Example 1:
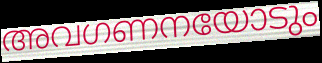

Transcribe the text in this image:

അവഗണനയോടും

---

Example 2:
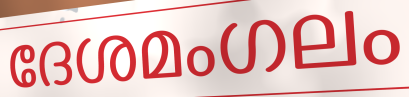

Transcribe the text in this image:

ദേശമംഗലം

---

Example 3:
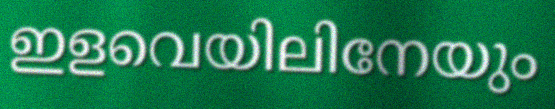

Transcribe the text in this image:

ഇളവെയിലിനേയും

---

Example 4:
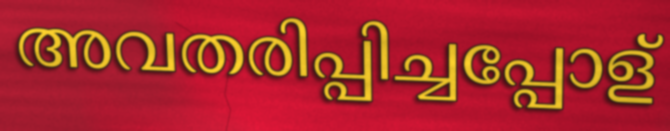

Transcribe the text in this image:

അവതരിപ്പിച്ചപ്പോള്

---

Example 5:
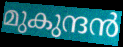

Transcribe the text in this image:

മുകുന്ദൻ